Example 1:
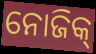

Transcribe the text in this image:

ନୋଜିକ୍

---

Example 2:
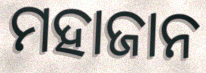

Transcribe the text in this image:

ମହାଜାନ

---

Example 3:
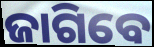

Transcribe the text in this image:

ଜାଗିବେ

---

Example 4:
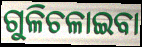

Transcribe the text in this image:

ଗୁଳିଚଳାଇବା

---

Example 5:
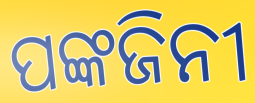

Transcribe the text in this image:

ପଙ୍କଜିନୀ